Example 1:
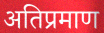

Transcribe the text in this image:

अतिप्रमाण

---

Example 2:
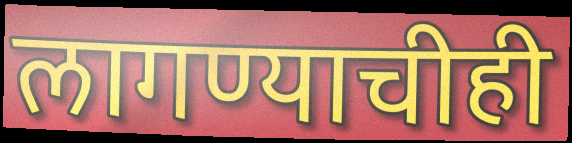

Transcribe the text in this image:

लागण्याचीही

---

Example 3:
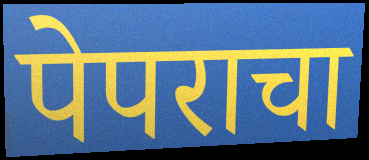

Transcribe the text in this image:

पेपराचा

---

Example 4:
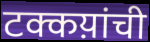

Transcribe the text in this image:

टक्कय़ांची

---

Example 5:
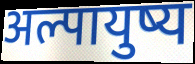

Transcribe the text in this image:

अल्पायुष्य